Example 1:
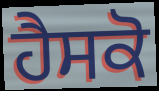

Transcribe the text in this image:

ਹੈਸਕੋ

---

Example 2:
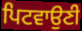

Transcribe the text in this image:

ਪਿਟਵਾਉਣੀ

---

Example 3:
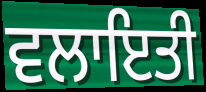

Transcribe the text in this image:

ਵਲਾਇਤੀ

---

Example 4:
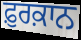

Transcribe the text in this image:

ਫ਼ੁਰਕ਼ਾਨ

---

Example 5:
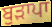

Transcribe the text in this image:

ਬੁੜਾਪਾ